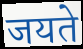
जयते